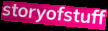
storyofstuff